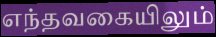
எந்தவகையிலும்